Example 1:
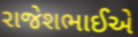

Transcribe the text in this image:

રાજેશભાઈએ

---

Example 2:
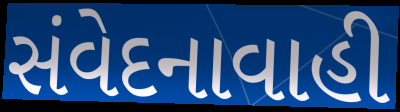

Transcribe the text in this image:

સંવેદનાવાહી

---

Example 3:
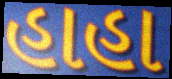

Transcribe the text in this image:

હાહા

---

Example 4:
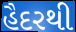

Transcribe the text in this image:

હૈદરથી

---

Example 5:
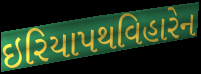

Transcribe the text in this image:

ઇરિયાપથવિહારેન